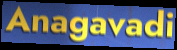
Anagavadi